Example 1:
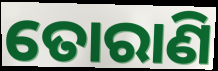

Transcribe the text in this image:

ତୋରାଣି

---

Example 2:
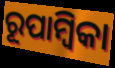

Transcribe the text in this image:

ରୂପାମ୍ବିକା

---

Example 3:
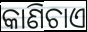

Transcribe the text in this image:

କାଣିଚାଏ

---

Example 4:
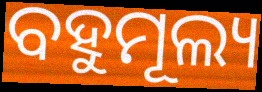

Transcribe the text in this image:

ବହୁମୂଲ୍ୟ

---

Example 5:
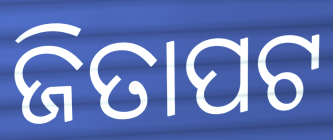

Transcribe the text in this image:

ଜିତାପଟ